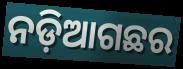
ନଡ଼ିଆଗଛର